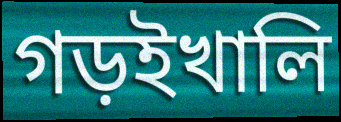
গড়ইখালি